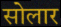
सोलार